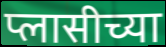
प्लासीच्या